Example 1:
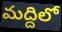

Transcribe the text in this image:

మద్దిలో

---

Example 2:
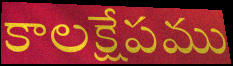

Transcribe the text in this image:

కాలక్షేపము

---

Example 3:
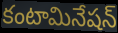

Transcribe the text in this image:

కంటామినేషన్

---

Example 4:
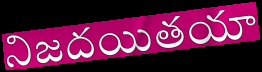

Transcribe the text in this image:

నిజదయితయా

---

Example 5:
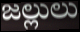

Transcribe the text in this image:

జల్లులు